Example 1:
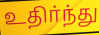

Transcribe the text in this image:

உதிர்ந்து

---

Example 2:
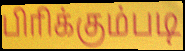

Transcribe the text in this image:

பிரிக்கும்படி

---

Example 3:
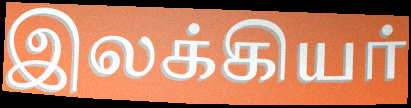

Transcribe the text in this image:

இலக்கியர்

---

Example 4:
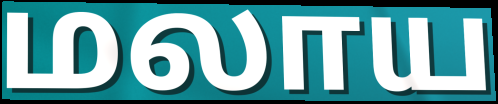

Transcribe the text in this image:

மலாய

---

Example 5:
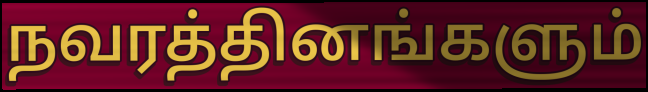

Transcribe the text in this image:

நவரத்தினங்களும்